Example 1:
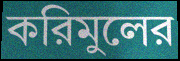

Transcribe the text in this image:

করিমুলের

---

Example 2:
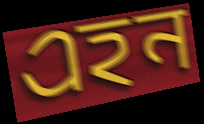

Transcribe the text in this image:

এহন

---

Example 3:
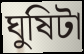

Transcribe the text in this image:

ঘুষিটা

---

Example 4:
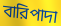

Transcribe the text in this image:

বারিপাদা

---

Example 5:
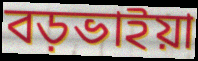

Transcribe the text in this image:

বড়ভাইয়া